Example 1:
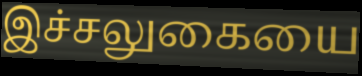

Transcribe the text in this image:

இச்சலுகையை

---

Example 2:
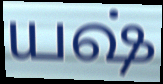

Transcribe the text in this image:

யஷ்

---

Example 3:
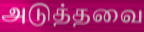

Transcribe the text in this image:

அடுத்தவை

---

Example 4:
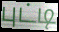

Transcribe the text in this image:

புட்டி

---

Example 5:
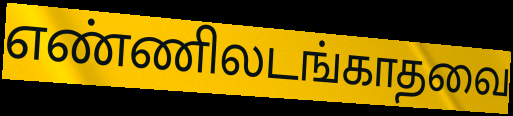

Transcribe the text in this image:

எண்ணிலடங்காதவை